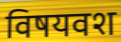
विषयवश